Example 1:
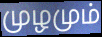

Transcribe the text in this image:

முழமும்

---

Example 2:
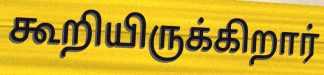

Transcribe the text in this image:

கூறியிருக்கிறார்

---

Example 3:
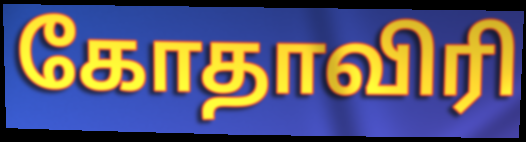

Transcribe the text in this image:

கோதாவிரி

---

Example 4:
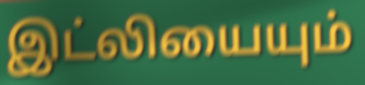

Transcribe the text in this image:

இட்லியையும்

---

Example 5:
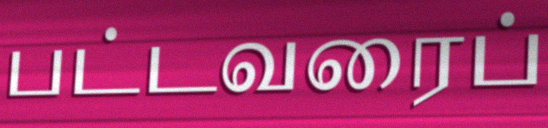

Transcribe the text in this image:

பட்டவரைப்